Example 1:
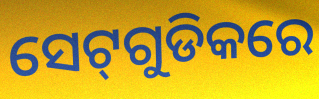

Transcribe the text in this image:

ସେଟ୍‌ଗୁଡିକରେ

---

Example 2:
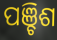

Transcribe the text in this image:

ପଞ୍ଚିଶ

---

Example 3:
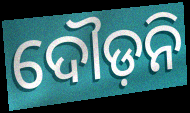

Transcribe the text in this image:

ଦୌଡ଼ନି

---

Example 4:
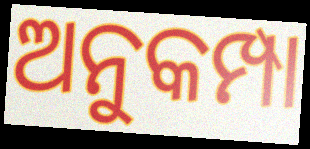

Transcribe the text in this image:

ଅନୁକମ୍ପା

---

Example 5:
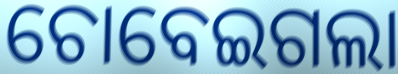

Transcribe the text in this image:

ଚୋବେଇଗଲା